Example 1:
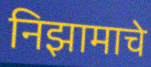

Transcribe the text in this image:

निझामाचे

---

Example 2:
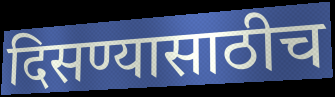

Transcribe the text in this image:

दिसण्यासाठीच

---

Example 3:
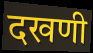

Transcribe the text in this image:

दखणी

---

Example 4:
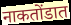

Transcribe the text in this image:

नाकतोंडात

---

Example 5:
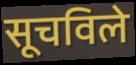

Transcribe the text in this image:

सूचविले